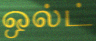
ஒல்ட்